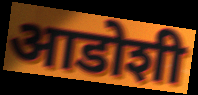
आडोशी